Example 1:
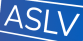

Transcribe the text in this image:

ASLV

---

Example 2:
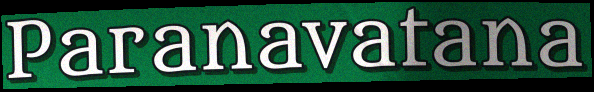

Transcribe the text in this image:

Paranavatana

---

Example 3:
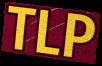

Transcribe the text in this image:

TLP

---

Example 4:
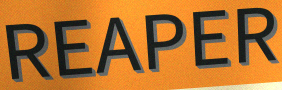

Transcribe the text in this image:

REAPER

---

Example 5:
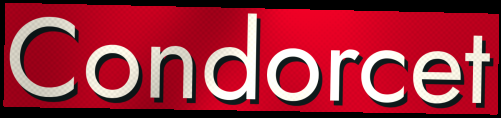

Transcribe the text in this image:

Condorcet